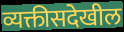
व्यक्तीसदेखील